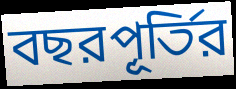
বছরপূর্তির